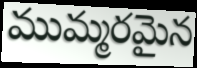
ముమ్మరమైన